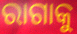
ରାଗାକୁ